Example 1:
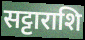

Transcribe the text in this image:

सट्टाराशि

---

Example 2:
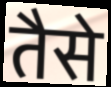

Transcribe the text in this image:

तैसे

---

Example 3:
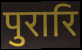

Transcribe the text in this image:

पुरारि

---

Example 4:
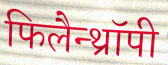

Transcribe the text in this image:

फिलैन्थ्रॉपी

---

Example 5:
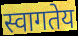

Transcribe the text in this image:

स्वागतेय